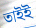
তাইই